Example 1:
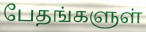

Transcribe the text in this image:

பேதங்களுள்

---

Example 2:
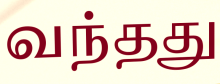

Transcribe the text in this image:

வந்தது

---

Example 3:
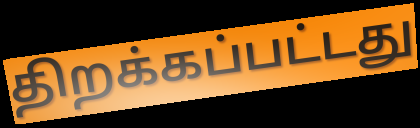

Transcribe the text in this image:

திறக்கப்பட்டது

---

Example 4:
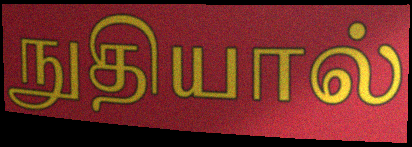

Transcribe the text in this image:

நுதியால்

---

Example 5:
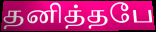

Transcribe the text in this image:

தனித்தபே